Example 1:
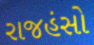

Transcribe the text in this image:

રાજહંસો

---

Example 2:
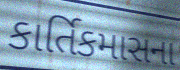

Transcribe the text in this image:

કાર્તિકમાસના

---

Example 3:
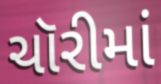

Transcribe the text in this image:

ચૉરીમાં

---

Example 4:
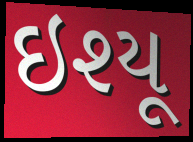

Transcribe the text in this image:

ઇશ્યૂ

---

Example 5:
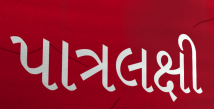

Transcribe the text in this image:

પાત્રલક્ષી